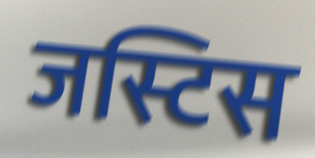
जस्टिस